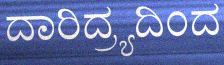
ದಾರಿದ್ರ್ಯದಿಂದ